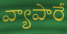
వ్యాపారే